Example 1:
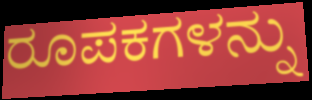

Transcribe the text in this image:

ರೂಪಕಗಳನ್ನು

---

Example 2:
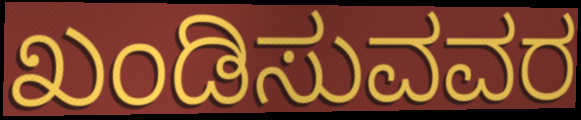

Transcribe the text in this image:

ಖಂಡಿಸುವವರ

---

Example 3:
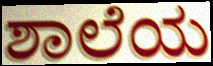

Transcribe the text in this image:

ಶಾಲೆಯ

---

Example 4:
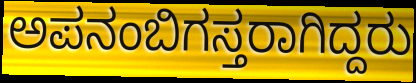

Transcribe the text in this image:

ಅಪನಂಬಿಗಸ್ತರಾಗಿದ್ದರು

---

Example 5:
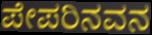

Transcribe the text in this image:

ಪೇಪರಿನವನ